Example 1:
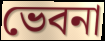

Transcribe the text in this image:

ভেবনা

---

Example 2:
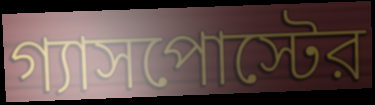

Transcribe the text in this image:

গ্যাসপোস্টের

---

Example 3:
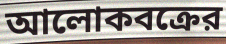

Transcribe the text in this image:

আলোকবক্রের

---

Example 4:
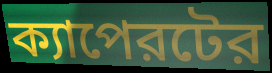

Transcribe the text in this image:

ক্যাপেরটের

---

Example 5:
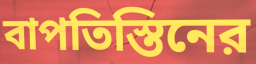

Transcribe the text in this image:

বাপতিস্তিনের